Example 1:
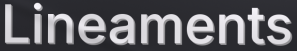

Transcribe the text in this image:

Lineaments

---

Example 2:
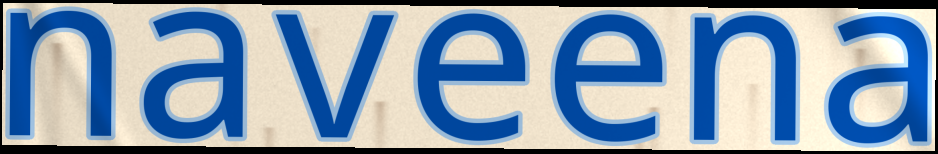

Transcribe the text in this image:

naveena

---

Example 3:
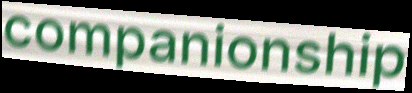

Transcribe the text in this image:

companionship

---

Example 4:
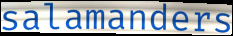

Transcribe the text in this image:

salamanders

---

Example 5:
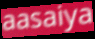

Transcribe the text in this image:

aasaiya